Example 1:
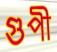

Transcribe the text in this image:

গুপী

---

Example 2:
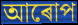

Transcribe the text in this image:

আৰোপ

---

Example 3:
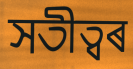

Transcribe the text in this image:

সতীত্বৰ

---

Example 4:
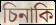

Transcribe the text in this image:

চিনাকি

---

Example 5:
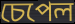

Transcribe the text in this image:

চেপেল